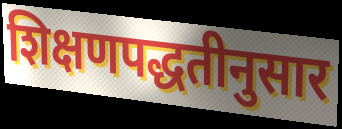
शिक्षणपद्धतीनुसार